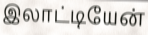
இலாட்டியேன்